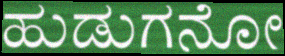
ಹುಡುಗನೋ